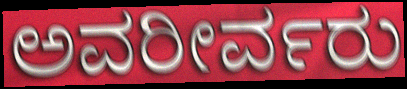
ಅವರೀರ್ವರು